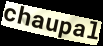
chaupal